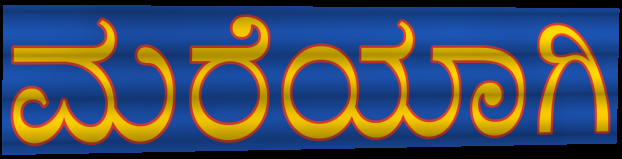
ಮರೆಯಾಗಿ